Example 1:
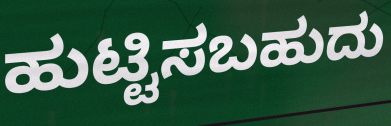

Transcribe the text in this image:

ಹುಟ್ಟಿಸಬಹುದು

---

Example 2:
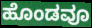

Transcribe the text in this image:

ಹೊಂಡವೂ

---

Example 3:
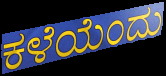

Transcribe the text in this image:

ಕಳೆಯೆಂದು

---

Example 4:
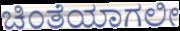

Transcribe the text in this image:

ಚಿಂತೆಯಾಗಲೀ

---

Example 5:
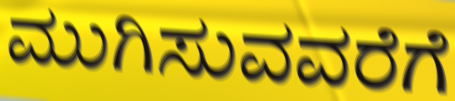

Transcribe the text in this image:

ಮುಗಿಸುವವರೆಗೆ